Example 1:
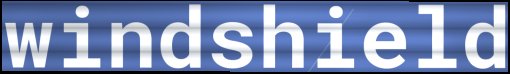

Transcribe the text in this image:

windshield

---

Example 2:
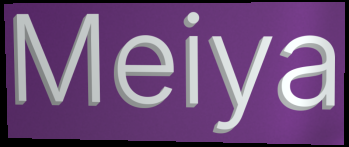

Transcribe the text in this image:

Meiya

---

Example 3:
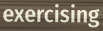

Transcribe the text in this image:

exercising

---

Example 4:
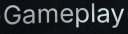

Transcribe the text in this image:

Gameplay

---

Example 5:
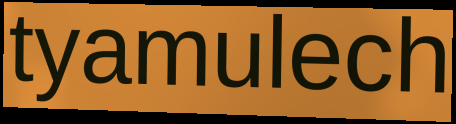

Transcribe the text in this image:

tyamulech